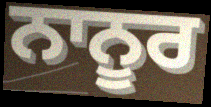
ਨਾਨੂਰ